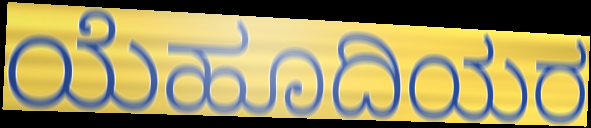
ಯೆಹೂದಿಯರ